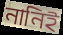
নানিই